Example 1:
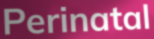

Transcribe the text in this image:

Perinatal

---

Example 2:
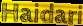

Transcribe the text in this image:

Haidari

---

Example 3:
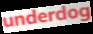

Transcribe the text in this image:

underdog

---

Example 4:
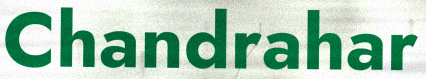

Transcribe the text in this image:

Chandrahar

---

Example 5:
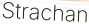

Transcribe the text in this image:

Strachan